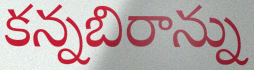
కన్నబిరాన్ను